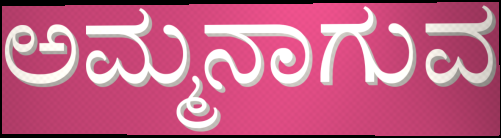
ಅಮ್ಮನಾಗುವ